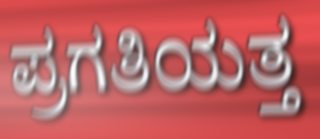
ಪ್ರಗತಿಯತ್ತ